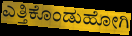
ಎತ್ತಿಕೊಂಡುಹೋಗಿ